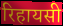
रिहायसी